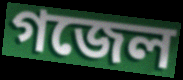
গজেল